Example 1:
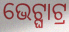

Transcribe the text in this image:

ଭେଟ୍ଘାଟ୍ର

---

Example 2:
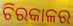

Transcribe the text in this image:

ଚିରକାଳର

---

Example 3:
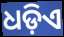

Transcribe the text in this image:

ଧଡ଼ିଏ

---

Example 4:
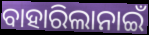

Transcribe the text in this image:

ବାହାରିଲାନାଇଁ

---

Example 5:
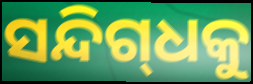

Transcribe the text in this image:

ସନ୍ଦିଗ୍‌ଧକୁ